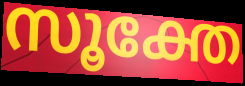
സൂക്തേ